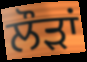
ਲੌੜਾਂ